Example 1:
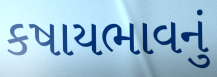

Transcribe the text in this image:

કષાયભાવનું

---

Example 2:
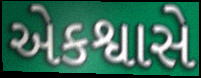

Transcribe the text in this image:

એકશ્વાસે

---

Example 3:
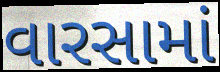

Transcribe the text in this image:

વારસામાં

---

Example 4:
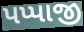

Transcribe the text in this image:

પપ્પાજી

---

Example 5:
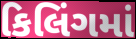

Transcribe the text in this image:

કિલિંગમાં